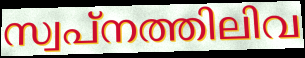
സ്വപ്നത്തിലിവ